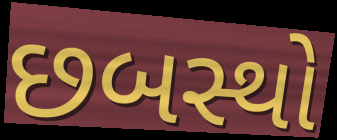
છબસ્થો